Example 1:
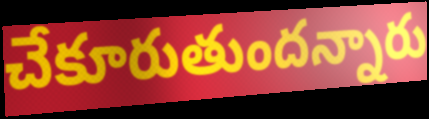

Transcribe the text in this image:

చేకూరుతుందన్నారు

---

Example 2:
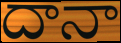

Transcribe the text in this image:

దానా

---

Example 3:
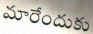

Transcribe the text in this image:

మారేందుకు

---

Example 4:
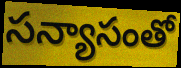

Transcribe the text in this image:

సన్యాసంతో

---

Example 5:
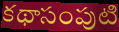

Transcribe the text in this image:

కథాసంపుటి